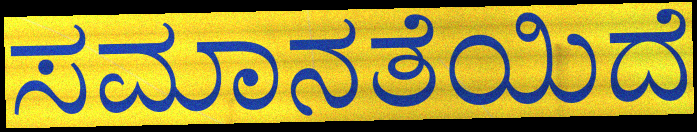
ಸಮಾನತೆಯಿದೆ